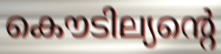
കൌടില്യന്റെ